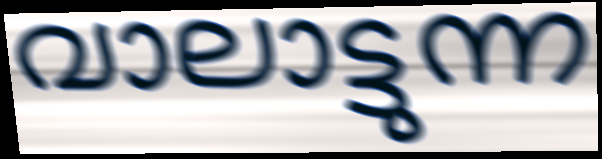
വാലാട്ടുന്ന